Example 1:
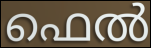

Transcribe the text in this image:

ഫെൽ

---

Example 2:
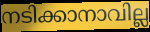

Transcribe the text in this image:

നടിക്കാനാവില്ല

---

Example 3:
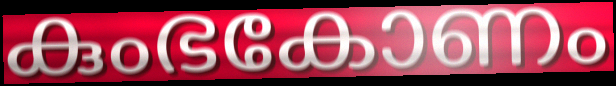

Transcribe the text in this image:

കുംഭകോണം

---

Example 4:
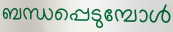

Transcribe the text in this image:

ബന്ധപ്പെടുമ്പോൾ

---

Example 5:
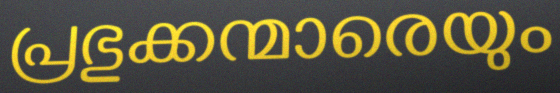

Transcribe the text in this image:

പ്രഭുക്കന്മാരെയും